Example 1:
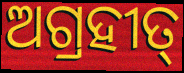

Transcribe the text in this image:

ଅଗ୍ରହୀତ୍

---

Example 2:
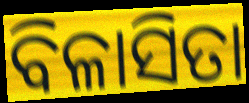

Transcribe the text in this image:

ବିଳାସିତା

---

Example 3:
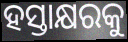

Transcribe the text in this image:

ହସ୍ତାକ୍ଷରକୁ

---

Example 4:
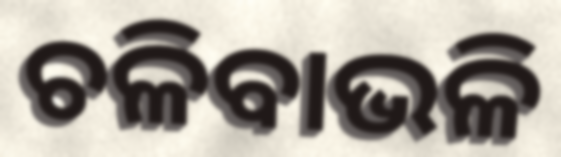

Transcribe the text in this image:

ଚଳିବାଭଳି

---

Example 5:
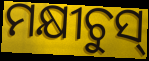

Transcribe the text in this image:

ମକ୍ଷୀଚୁସ୍